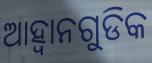
ଆହ୍ୱାନଗୁଡିକ